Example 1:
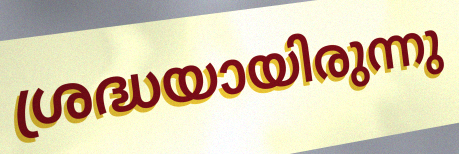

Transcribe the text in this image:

ശ്രദ്ധയായിരുന്നു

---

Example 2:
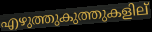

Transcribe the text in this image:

എഴുത്തുകുത്തുകളില്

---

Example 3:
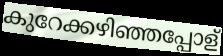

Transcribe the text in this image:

കുറേക്കഴിഞ്ഞപ്പോള്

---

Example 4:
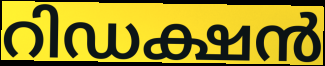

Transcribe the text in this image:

റിഡക്ഷൻ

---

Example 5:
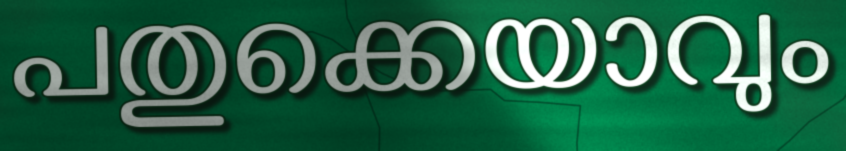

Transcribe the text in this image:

പതുക്കെയാവും